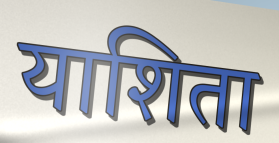
याशिता